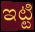
ఇట్టి